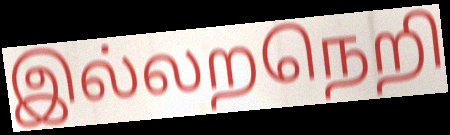
இல்லறநெறி